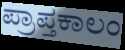
ಪ್ರಾಪ್ತಕಾಲಂ